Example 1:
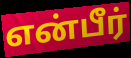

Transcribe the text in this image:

என்பீர்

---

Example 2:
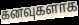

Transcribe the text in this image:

கனவுகளாக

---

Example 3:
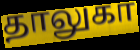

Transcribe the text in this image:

தாலுகா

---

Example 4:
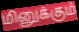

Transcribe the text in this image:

மினுக்கும்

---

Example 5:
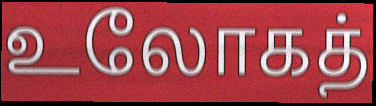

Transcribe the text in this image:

உலோகத்